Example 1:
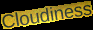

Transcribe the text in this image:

Cloudiness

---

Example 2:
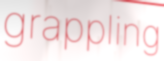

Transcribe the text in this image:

grappling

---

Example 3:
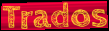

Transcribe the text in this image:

Trados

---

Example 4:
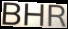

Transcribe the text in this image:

BHR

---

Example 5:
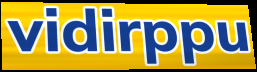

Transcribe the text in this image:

vidirppu